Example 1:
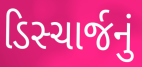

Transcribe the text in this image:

ડિસ્ચાર્જનું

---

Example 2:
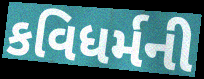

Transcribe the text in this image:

કવિધર્મની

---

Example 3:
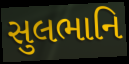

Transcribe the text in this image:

સુલભાનિ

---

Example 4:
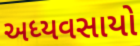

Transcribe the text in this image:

અધ્યવસાયો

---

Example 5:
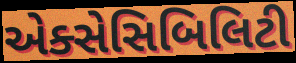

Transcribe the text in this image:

એક્સેસિબિલિટી